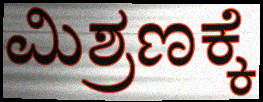
ಮಿಶ್ರಣಕ್ಕೆ